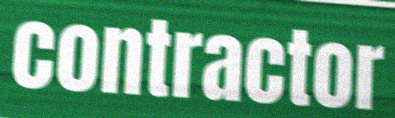
contractor